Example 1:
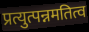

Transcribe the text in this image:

प्रत्युत्पन्नमतित्व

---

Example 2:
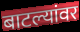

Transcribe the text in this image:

बाटल्यांवर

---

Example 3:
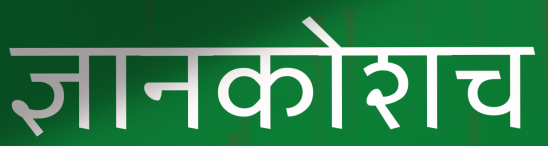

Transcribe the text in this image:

ज्ञानकोशच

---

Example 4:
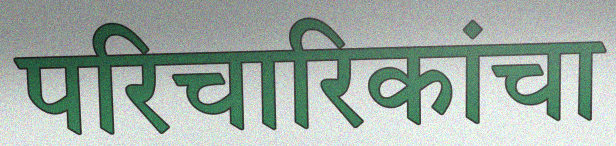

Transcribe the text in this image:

परिचारिकांचा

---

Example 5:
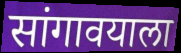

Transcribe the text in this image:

सांगावयाला